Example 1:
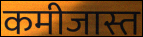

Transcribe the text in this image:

कमीजास्त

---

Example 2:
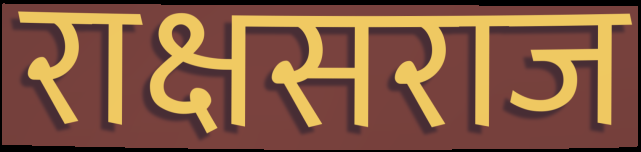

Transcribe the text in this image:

राक्षसराज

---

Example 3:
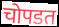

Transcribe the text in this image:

चोपडत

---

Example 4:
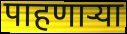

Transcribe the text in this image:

पाहणाऱ्या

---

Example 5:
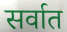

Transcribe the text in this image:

सर्वात